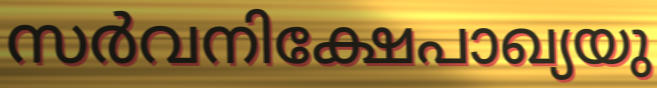
സർവനിക്ഷേപാഖ്യയു